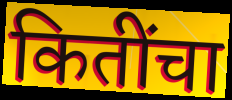
कितींचा